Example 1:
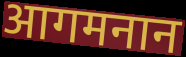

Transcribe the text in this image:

आगमनान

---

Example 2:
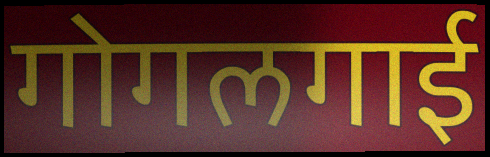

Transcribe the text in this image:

गोगलगाई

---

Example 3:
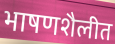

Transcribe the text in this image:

भाषणशैलीत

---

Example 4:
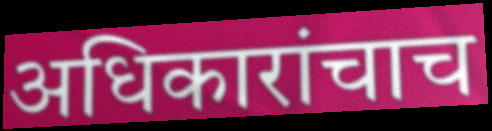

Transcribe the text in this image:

अधिकारांचाच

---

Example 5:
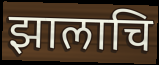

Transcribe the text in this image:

झालाचि